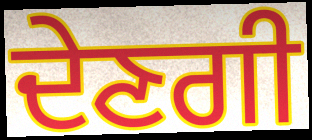
ਦੇਣਗੀ